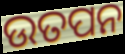
ଉତପନ